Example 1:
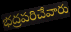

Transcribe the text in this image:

భద్రపరిచేవారు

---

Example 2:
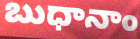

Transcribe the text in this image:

బుధానాం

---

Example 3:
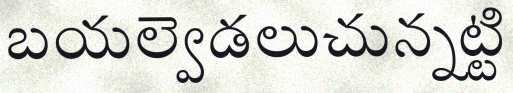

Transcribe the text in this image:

బయల్వెడలుచున్నట్టి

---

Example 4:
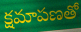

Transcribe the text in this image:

క్షమాపణతో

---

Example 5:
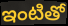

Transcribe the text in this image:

ఇంటితో